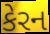
કેરન